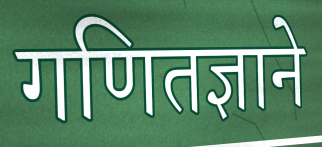
गणितज्ञाने